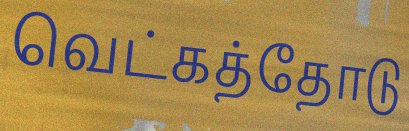
வெட்கத்தோடு